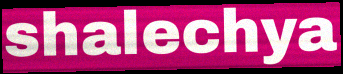
shalechya